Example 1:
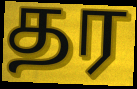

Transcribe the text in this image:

தர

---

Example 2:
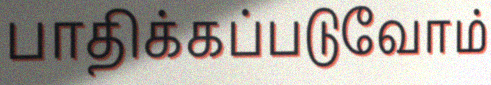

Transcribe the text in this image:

பாதிக்கப்படுவோம்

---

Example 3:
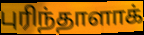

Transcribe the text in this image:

புரிந்தாளாக்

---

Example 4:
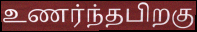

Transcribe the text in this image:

உணர்ந்தபிறகு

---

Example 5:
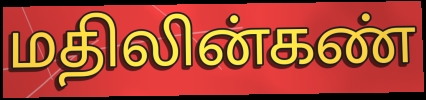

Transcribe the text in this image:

மதிலின்கண்